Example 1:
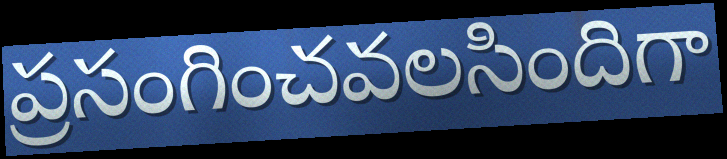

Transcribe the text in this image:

ప్రసంగించవలసిందిగా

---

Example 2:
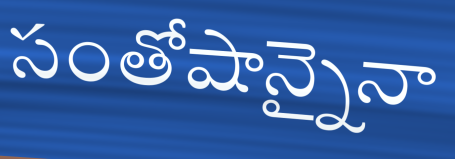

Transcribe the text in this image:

సంతోషాన్నైనా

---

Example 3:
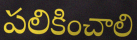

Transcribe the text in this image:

పలికించాలి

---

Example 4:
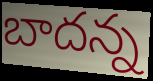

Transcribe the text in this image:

బాదన్న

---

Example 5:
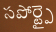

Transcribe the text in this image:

సపోర్ట్పై